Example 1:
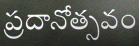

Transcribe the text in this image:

ప్రదానోత్సవం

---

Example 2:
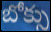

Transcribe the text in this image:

బోక్సు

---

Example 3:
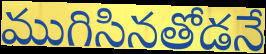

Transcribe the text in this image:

ముగిసినతోడనే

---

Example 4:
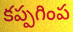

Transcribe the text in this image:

కప్పగింప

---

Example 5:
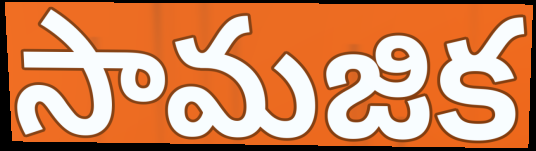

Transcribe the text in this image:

సామజిక